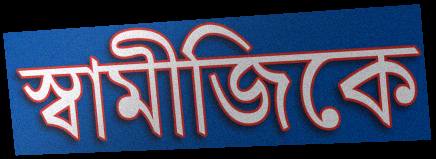
স্বামীজিকে